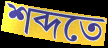
শব্দতে